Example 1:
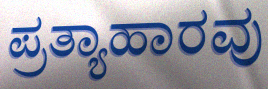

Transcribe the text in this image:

ಪ್ರತ್ಯಾಹಾರವು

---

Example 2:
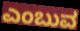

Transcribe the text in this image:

ಎಂಬುವ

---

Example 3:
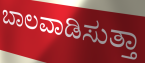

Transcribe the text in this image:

ಬಾಲವಾಡಿಸುತ್ತಾ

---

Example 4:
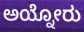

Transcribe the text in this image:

ಅಯ್ನೋರು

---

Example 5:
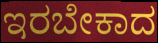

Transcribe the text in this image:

ಇರಬೇಕಾದ